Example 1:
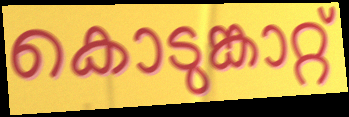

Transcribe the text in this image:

കൊടുങ്കാറ്റ്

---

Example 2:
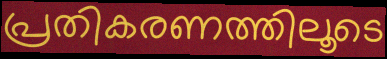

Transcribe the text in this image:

പ്രതികരണത്തിലൂടെ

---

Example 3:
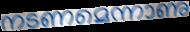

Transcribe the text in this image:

നടണമെന്നാണു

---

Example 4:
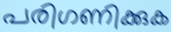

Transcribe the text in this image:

പരിഗണിക്കുക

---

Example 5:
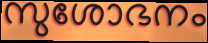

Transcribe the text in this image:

സുശോഭനം